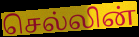
செல்லின்